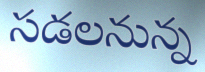
సడలనున్న